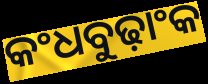
କଂଧବୁଢ଼ାଂକ